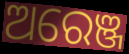
ଅରେଞ୍ଜ